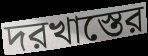
দরখাস্তের